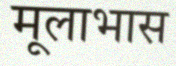
मूलाभास